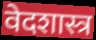
वेदशास्त्र